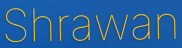
Shrawan